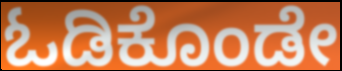
ಓಡಿಕೊಂಡೇ